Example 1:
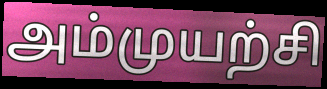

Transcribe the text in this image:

அம்முயற்சி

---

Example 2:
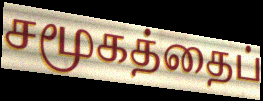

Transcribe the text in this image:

சமூகத்தைப்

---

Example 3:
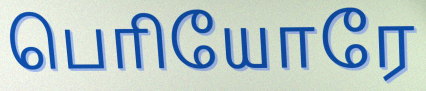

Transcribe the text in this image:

பெரியோரே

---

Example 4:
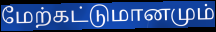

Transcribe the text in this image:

மேற்கட்டுமானமும்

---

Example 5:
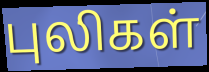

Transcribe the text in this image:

புலிகள்